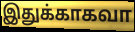
இதுக்காகவா